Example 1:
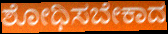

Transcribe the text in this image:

ಶೋಧಿಸಬೇಕಾದ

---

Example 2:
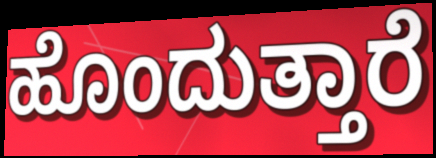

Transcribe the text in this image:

ಹೊಂದುತ್ತಾರೆ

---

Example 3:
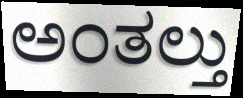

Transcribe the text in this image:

ಅಂತಲ್ತು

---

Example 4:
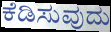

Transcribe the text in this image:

ಕೆಡಿಸುವುದು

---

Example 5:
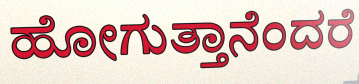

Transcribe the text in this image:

ಹೋಗುತ್ತಾನೆಂದರೆ